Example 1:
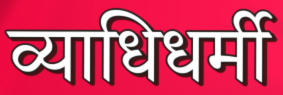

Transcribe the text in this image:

व्याधिधर्मी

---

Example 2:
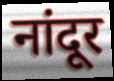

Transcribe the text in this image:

नांदूर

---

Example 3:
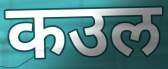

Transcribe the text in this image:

कउल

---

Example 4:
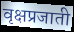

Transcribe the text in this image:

वृक्षप्रजाती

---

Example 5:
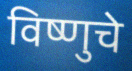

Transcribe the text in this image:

विष्णुचे